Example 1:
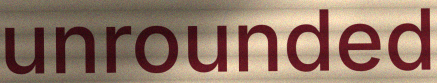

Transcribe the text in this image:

unrounded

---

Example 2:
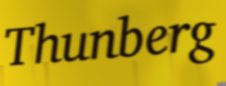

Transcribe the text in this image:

Thunberg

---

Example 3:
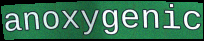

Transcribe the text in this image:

anoxygenic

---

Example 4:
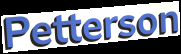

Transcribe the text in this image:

Petterson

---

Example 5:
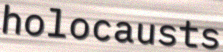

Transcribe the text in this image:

holocausts